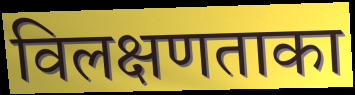
विलक्षणताका